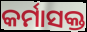
କର୍ମାସକ୍ତ